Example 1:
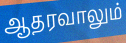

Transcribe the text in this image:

ஆதரவாலும்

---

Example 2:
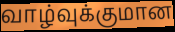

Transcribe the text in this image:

வாழ்வுக்குமான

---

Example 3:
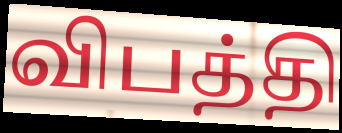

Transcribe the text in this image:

விபத்தி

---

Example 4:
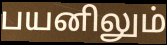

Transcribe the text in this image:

பயனிலும்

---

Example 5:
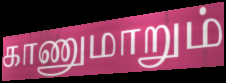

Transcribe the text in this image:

காணுமாறும்